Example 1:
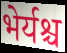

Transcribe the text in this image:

भेर्यश्च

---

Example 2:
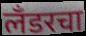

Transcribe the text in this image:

लँडरचा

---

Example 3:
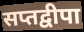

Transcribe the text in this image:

सप्तद्वीपा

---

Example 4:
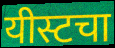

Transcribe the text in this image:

यीस्टचा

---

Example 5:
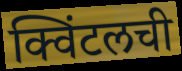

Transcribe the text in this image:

क्विंटलची